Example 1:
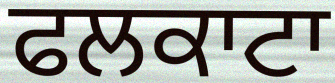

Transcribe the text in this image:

ਫਲਕਾਟਾ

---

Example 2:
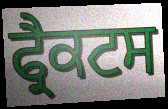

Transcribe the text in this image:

ਫ੍ਰੈਕਟਸ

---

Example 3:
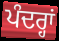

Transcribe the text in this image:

ਪੰਦਰ੍ਹਾਂ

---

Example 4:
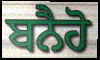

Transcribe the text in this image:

ਬਨੈਹੋ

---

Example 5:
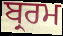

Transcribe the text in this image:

ਬ੍ਰਰਮ